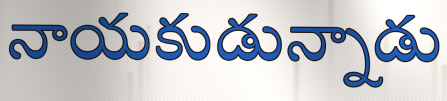
నాయకుడున్నాడు